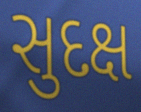
સુદક્ષ